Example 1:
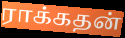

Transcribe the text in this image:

ராக்கதன்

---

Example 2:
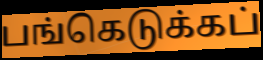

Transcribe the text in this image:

பங்கெடுக்கப்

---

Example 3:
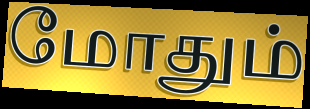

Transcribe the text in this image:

மோதும்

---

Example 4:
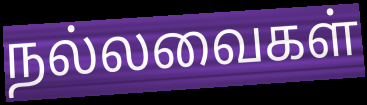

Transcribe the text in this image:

நல்லவைகள்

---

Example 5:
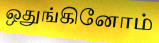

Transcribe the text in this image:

ஒதுங்கினோம்